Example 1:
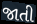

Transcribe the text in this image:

જાતી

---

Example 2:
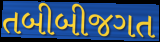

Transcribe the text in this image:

તબીબીજગત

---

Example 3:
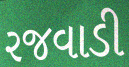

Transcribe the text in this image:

રજવાડી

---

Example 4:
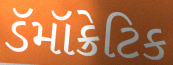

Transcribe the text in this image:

ડૅમૉક્રેટિક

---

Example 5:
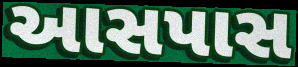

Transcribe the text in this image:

આસપાસ